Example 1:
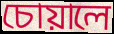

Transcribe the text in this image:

চোয়ালে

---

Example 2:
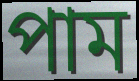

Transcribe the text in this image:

পাম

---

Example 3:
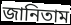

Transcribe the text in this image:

জানিতাম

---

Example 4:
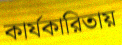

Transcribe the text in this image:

কার্যকারিতায়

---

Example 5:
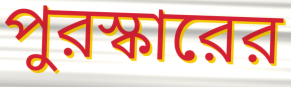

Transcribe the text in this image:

পুরস্কারের